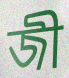
জী